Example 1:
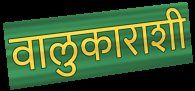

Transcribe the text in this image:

वालुकाराशी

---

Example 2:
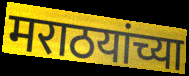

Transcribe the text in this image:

मराठयांच्या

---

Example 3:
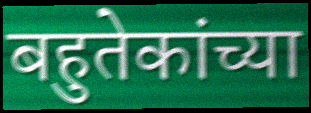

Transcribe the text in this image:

बहुतेकांच्या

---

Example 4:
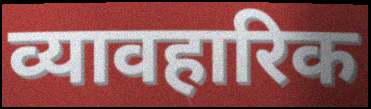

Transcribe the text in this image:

व्यावहारिक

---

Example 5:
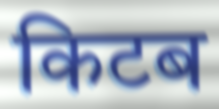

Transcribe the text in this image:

किटब